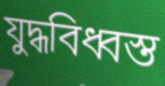
যুদ্ধবিধ্বস্ত